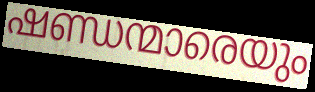
ഷണ്ഡന്മാരെയും